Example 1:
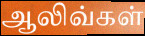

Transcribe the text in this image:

ஆலிவ்கள்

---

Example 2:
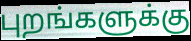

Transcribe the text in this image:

புறங்களுக்கு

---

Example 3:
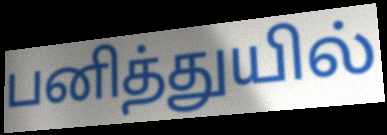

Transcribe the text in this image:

பனித்துயில்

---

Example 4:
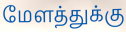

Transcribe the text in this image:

மேளத்துக்கு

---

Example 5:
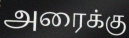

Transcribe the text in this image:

அரைக்கு